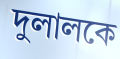
দুলালকে